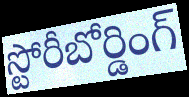
స్టోరీబోర్డింగ్